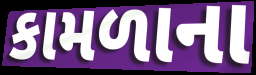
કામળાના